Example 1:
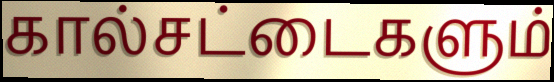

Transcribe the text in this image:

கால்சட்டைகளும்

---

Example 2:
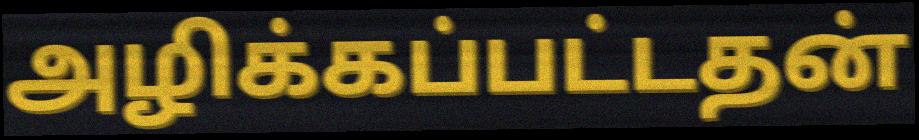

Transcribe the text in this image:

அழிக்கப்பட்டதன்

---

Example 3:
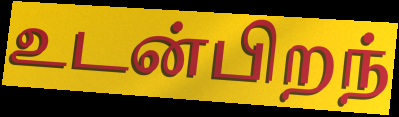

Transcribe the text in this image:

உடன்பிறந்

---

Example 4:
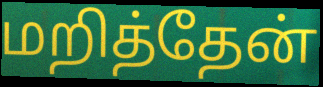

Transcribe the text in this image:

மறித்தேன்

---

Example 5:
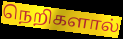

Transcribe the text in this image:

நெறிகளால்